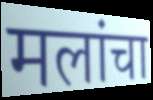
मलांचा